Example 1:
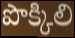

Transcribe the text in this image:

పొక్కిలి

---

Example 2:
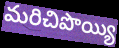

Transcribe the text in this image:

మరిచిపొయ్యి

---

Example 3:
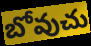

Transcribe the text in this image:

బోవుచు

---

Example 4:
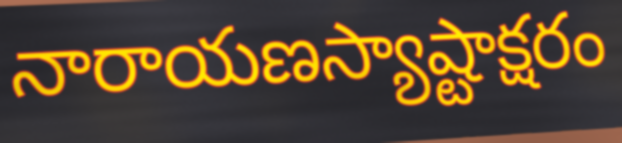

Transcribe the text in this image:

నారాయణస్యాష్టాక్షరం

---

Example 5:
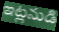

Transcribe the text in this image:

ఇట్లనుడి